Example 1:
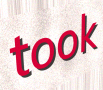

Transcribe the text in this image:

took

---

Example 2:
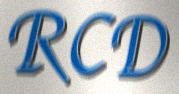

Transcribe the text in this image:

RCD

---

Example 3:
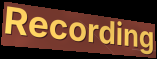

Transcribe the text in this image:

Recording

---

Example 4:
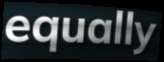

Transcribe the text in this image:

equally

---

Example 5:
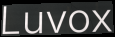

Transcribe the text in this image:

Luvox